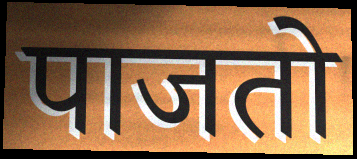
पाजतो